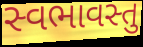
સ્વભાવસ્તુ